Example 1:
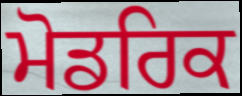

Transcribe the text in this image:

ਮੋਡਰਿਕ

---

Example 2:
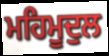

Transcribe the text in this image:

ਮਹਿਮੂਦੁਲ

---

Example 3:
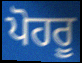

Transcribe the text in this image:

ਪੋਹਰੂ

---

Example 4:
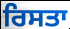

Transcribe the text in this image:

ਰਿਸਤਾ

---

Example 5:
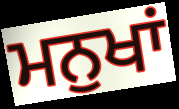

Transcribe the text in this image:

ਮਨੁਖਾਂ